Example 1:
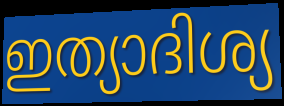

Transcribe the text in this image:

ഇത്യാദിശ്യ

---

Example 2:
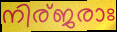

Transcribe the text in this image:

നിര്ജരാഃ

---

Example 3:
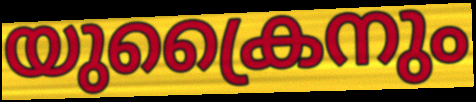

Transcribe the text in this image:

യുക്രൈനും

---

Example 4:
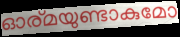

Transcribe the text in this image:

ഓര്മയുണ്ടാകുമോ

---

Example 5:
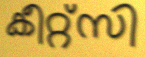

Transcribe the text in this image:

കീറ്റ്സി